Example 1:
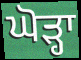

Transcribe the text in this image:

ਘੋੜ੍ਹਾ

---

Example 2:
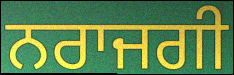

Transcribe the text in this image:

ਨਰਾਜਗੀ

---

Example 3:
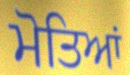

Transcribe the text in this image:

ਮੋਤਿਆਂ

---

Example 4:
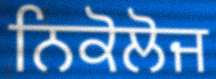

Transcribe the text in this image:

ਨਿਕੋਲੋਜ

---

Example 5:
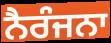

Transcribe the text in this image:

ਨੈਰੰਜਨਾ